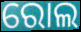
ରୋଲ